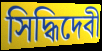
সিদ্ধিদেবী